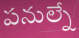
పనుల్నే